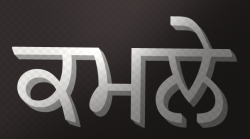
ਕਮਲੇ